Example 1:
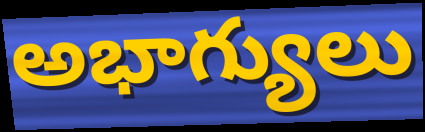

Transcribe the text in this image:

అభాగ్యులు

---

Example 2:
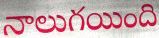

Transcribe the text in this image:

నాలుగయింది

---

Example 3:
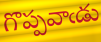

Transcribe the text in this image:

గొప్పవాఁడు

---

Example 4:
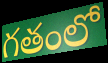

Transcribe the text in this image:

గతంలో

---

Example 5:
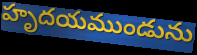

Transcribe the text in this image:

హృదయముండును